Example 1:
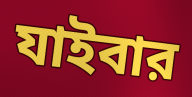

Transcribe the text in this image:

যাইবার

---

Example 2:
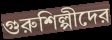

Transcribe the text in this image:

গুরুশিল্পীদের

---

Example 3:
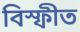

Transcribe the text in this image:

বিস্ফীত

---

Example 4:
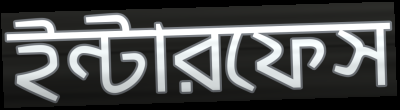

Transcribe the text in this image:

ইন্টারফেস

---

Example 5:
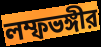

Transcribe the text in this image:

লম্ফভঙ্গীর